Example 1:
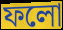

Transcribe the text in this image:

ফলো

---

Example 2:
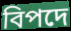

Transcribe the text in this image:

বিপদে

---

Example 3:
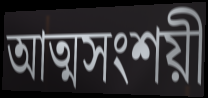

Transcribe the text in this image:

আত্মসংশয়ী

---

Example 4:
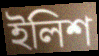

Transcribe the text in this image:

ইলিশ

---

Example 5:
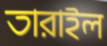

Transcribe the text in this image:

তারাইল